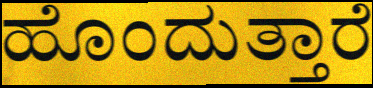
ಹೊಂದುತ್ತಾರೆ